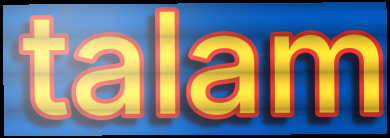
talam